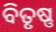
ବିତୃଷ୍ଣ